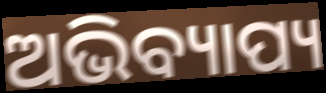
ଅଭିବ୍ୟାପ୍ୟ